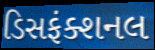
ડિસફંક્શનલ